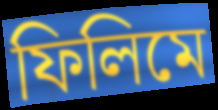
ফিলিমে